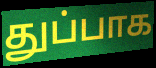
துப்பாக